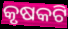
କୃଷକଟି